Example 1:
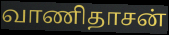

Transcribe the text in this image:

வாணிதாசன்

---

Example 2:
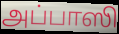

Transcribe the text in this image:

அப்பாஸி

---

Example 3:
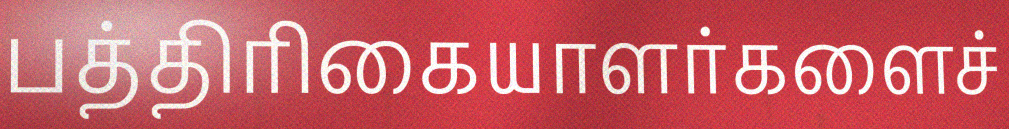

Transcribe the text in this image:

பத்திரிகையாளர்களைச்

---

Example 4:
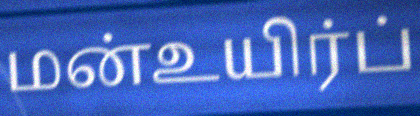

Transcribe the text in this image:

மன்உயிர்ப்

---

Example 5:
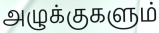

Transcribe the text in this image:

அழுக்குகளும்